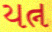
યત્ન